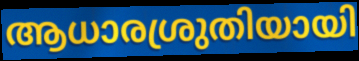
ആധാരശ്രുതിയായി